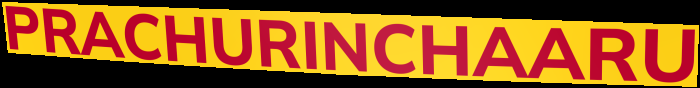
PRACHURINCHAARU